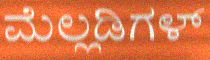
ಮೆಲ್ಲಡಿಗಳ್